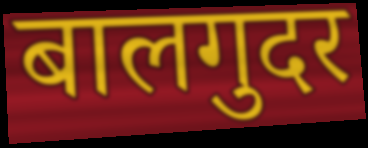
बालगुदर